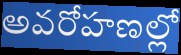
అవరోహణల్లో